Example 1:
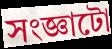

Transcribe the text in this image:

সংজ্ঞাটো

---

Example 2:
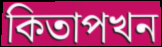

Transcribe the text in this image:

কিতাপখন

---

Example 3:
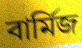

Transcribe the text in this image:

বাৰ্মিজ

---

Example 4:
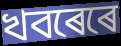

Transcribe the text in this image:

খবৰেৰে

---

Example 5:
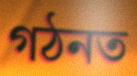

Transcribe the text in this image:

গঠনত